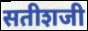
सतीशजी